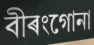
বীৰংগোনা